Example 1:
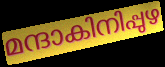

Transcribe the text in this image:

മന്ദാകിനിപ്പുഴ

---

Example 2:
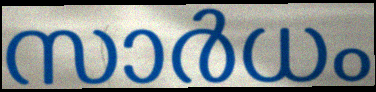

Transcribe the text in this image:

സാർധം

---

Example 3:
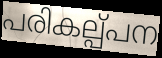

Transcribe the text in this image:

പരികല്പ്പന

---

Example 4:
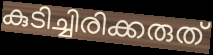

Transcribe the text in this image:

കുടിച്ചിരിക്കരുത്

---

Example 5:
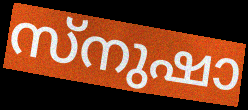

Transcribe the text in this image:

സ്നുഷാ